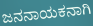
ಜನನಾಯಕನಾಗಿ